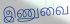
இணுவை